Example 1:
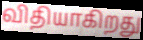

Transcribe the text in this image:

விதியாகிறது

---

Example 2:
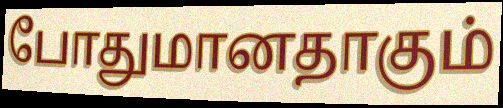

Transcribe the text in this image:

போதுமானதாகும்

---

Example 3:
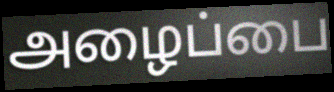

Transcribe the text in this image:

அழைப்பை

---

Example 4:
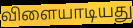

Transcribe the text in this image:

விளையாடியது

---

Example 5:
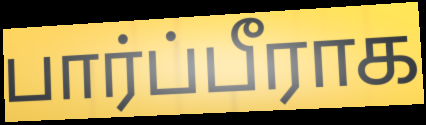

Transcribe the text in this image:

பார்ப்பீராக